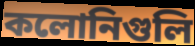
কলোনিগুলি